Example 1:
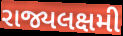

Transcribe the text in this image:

રાજ્યલક્ષમી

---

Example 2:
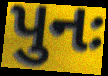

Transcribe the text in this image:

પુનઃ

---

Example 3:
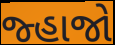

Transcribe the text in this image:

જ્હાજો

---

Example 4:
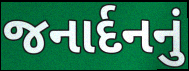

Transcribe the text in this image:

જનાર્દનનું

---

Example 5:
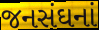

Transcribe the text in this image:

જનસંઘનાં